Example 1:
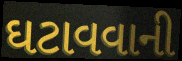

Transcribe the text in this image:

ઘટાવવાની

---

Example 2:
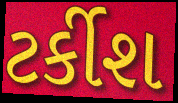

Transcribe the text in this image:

ટર્કીશ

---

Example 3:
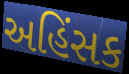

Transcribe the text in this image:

અહિંસક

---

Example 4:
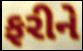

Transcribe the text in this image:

ફરીને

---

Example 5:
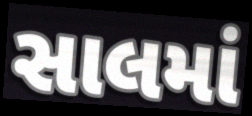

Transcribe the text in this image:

સાલમાં